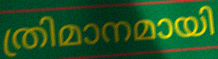
ത്രിമാനമായി